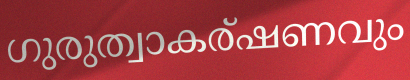
ഗുരുത്വാകര്ഷണവും